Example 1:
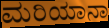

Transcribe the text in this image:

ಮರಿಯಾನಾ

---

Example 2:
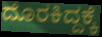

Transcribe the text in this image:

ದೊರಕಿದ್ದಕ್ಕೆ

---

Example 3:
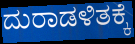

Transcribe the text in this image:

ದುರಾಡಳಿತಕ್ಕೆ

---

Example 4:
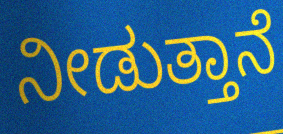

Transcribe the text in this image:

ನೀಡುತ್ತಾನೆ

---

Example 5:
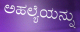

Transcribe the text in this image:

ಅಹಲ್ಯೆಯನ್ನು